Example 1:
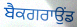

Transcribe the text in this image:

ਬੈਕਗਰਾਉਂਡ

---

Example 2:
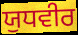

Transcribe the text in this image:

ਯੁਧਵੀਰ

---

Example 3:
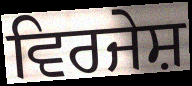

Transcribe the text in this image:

ਵਿਰਜੇਸ਼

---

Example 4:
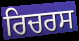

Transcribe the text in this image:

ਰਿਚਰਸ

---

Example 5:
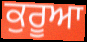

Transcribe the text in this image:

ਕੁਰੂਆ